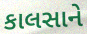
કાલસાને